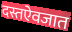
दस्तऐवजात